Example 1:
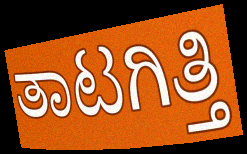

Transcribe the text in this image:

ತಾಟಗಿತ್ತಿ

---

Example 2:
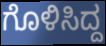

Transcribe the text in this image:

ಗೊಳಿಸಿದ್ದ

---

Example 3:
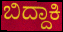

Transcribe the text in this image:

ಬಿದ್ದಾಕಿ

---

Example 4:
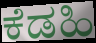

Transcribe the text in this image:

ಕೆಡಹಿ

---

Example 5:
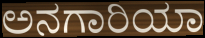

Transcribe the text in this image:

ಅನಗಾರಿಯಾ